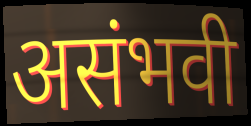
असंभवी